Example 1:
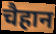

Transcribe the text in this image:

चैहान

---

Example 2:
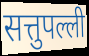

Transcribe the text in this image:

सत्तुपल्ली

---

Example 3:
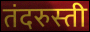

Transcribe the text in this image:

तंदरुस्ती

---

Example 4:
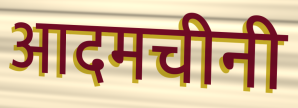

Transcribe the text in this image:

आदमचीनी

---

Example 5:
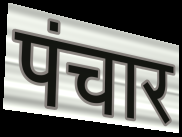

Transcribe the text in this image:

पंचार